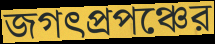
জগৎপ্রপঞ্চের